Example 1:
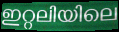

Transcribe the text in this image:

ഇറ്റലിയിലെ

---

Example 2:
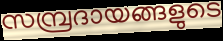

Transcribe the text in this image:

സമ്പ്രദായങ്ങളുടെ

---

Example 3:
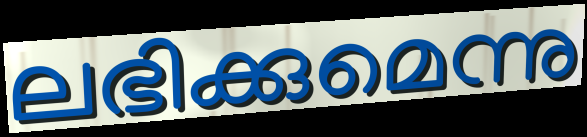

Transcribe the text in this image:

ലഭിക്കുമെന്നു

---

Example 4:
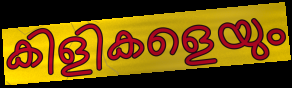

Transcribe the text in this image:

കിളികളെയും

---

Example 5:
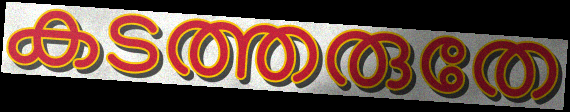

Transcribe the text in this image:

കടത്തരുതേ